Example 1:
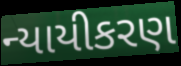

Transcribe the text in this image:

ન્યાયીકરણ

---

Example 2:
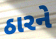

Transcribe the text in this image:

ઠારને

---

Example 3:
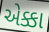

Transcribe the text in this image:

એક્કા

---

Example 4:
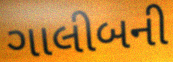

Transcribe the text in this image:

ગાલીબની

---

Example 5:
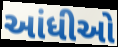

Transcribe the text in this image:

આંધીઓ